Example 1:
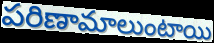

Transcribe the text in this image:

పరిణామాలుంటాయి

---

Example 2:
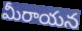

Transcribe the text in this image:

మీరాయన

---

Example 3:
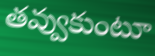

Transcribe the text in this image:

తవ్వుకుంటూ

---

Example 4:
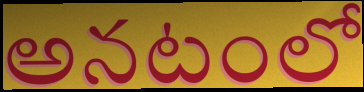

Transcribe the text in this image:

అనటంలో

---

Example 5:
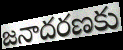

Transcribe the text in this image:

జనాదరణకు